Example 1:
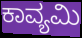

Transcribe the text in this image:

ಕಾವ್ಯಮಿ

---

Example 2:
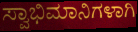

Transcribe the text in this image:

ಸ್ವಾಭಿಮಾನಿಗಳಾಗಿ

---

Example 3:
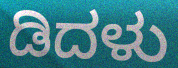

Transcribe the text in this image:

ಡಿದಳು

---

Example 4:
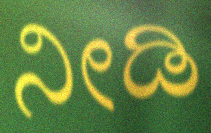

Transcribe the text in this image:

ನೀಡಿ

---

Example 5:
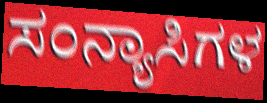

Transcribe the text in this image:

ಸಂನ್ಯಾಸಿಗಳ